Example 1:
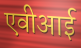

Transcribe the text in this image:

एवीआई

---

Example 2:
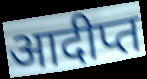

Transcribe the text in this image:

आदीप्त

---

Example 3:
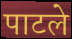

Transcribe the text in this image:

पाटले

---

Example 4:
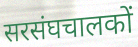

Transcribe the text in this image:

सरसंघचालकों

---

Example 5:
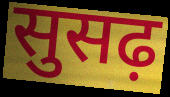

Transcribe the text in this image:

सुसढ़